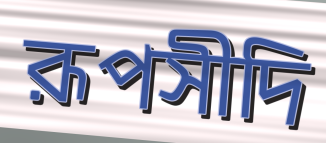
রূপসীদি